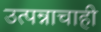
उत्पन्नाचाही